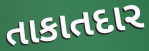
તાકાતદાર